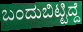
ಬಂದುಬಿಟ್ಟಿದ್ದೆ